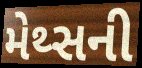
મેથ્સની